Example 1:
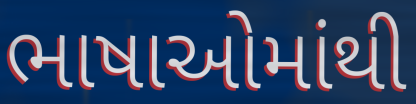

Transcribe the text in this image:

ભાષાઓમાંથી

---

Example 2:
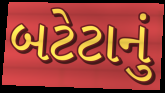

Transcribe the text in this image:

બટેટાનું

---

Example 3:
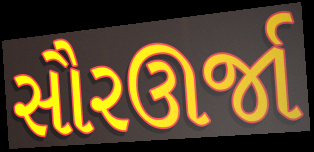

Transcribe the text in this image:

સૌરઊર્જા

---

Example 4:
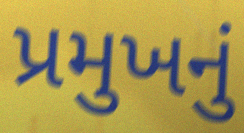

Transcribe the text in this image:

પ્રમુખનું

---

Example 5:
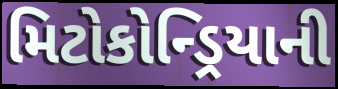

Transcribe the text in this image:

મિટોકોન્ડ્રિયાની